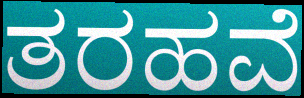
ತರಹವೆ